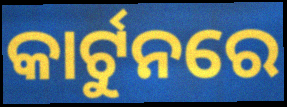
କାର୍ଟୁନରେ